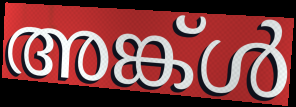
അങ്ക്ൾ